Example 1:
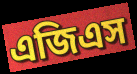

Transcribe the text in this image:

এজিএস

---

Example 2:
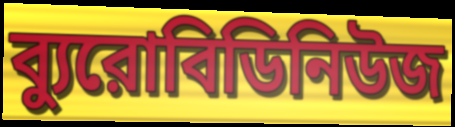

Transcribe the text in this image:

ব্যুরোবিডিনিউজ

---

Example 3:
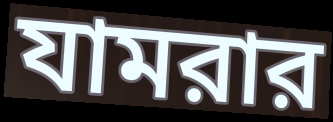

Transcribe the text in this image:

যামরার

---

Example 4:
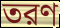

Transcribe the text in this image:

তরণ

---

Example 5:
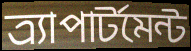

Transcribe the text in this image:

ত্র্যাপার্টমেন্ট